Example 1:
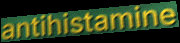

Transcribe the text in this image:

antihistamine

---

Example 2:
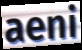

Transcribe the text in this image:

aeni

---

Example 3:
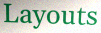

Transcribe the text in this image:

Layouts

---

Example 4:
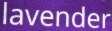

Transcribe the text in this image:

lavender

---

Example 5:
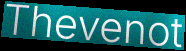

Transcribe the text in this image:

Thevenot